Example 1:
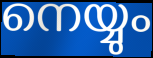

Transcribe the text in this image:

നെയ്യും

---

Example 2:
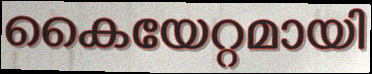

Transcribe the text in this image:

കൈയേറ്റമായി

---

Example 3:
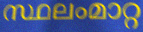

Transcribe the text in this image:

സ്ഥലംമാറ്റ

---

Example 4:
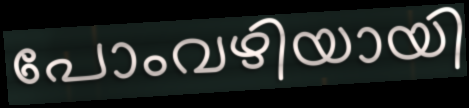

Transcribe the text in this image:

പോംവഴിയായി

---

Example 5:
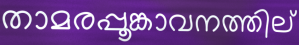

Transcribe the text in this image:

താമരപ്പൂങ്കാവനത്തില്